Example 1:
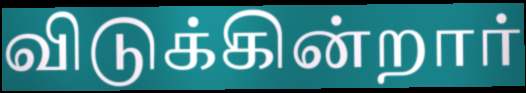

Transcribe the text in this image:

விடுக்கின்றார்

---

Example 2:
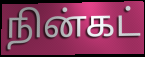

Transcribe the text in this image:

நின்கட்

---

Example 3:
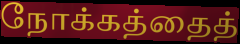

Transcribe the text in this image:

நோக்கத்தைத்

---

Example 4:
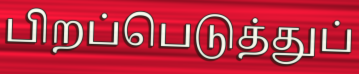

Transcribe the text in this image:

பிறப்பெடுத்துப்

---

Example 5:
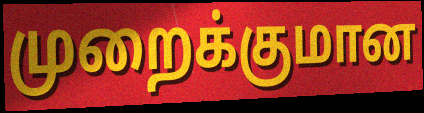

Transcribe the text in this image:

முறைக்குமான